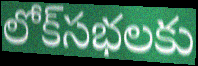
లోక్‌సభలకు